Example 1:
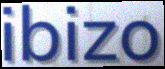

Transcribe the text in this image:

ibizo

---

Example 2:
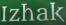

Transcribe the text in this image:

Izhak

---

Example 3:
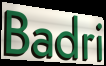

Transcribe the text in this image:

Badri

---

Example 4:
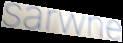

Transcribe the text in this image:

sarwne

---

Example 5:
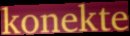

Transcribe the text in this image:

konekte